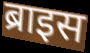
ब्राइस